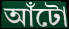
আঁটো